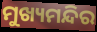
ମୁଖ୍ୟମନ୍ଦିର